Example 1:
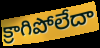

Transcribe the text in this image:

క్రాగిపోలేదా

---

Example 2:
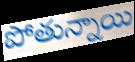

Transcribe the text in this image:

పోతున్నాయి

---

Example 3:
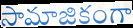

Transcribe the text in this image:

సామాజికంగా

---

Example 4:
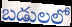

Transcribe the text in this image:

బడులలో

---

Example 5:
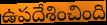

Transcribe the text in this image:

ఉపదేశించింది